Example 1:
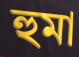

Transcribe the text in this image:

হুমা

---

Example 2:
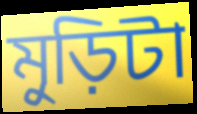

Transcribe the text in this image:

মুড়িটা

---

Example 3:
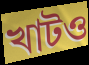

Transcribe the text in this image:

খাটও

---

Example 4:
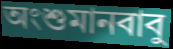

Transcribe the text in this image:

অংশুমানবাবু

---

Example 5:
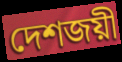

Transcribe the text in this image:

দেশজয়ী